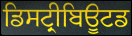
ਡਿਸਟ੍ਰੀਬਿਊਟਡ